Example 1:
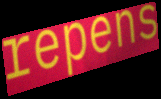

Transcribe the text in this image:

repens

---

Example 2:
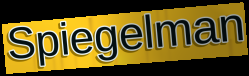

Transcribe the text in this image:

Spiegelman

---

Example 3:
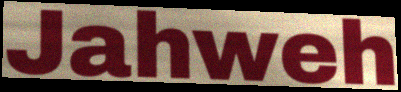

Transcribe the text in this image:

Jahweh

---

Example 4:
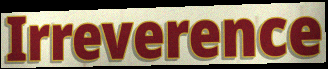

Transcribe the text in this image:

Irreverence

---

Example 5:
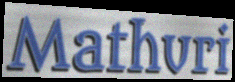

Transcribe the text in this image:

Mathuri